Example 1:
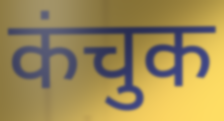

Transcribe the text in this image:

कंचुक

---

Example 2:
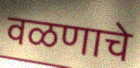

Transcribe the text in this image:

वळणाचे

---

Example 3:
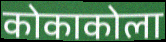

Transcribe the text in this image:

कोकाकोला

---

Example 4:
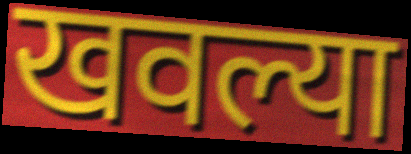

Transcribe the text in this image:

खवल्या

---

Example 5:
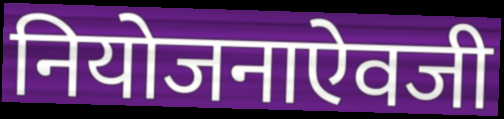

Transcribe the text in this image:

नियोजनाऐवजी